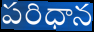
పరిధాన